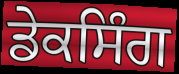
ਡੇਕਸਿੰਗ